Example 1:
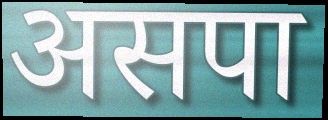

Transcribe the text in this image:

असपा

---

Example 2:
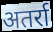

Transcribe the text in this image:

अतर्रा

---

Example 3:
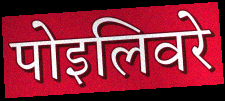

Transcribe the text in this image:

पोइलिवरे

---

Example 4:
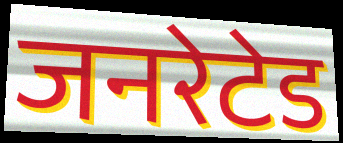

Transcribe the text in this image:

जनरेटेड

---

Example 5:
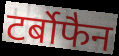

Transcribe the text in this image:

टर्बोफैन